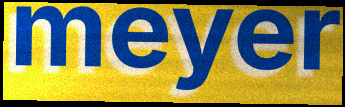
meyer